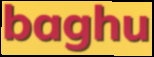
baghu